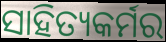
ସାହିତ୍ୟକର୍ମର